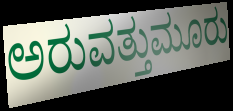
ಅರುವತ್ತುಮೂರು